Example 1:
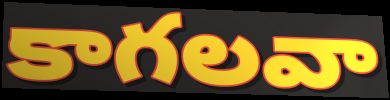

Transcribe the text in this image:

కాగలవా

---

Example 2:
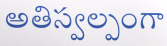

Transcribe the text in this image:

అతిస్వల్పంగా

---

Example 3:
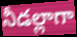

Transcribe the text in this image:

నీడల్లాగా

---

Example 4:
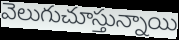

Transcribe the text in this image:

వెలుగుచూస్తున్నాయి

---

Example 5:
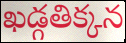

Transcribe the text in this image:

ఖడ్గతిక్కన